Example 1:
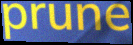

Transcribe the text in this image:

prune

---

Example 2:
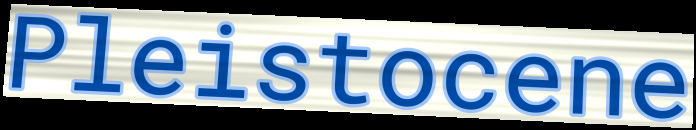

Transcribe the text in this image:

Pleistocene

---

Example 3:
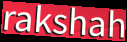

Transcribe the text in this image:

rakshah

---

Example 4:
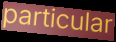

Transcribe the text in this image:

particular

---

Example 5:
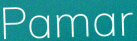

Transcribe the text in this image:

Pamar